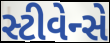
સ્ટીવેન્સે